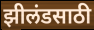
झीलंडसाठी